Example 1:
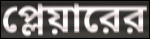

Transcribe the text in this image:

প্লেয়ারের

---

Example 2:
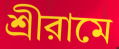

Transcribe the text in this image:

শ্রীরামে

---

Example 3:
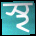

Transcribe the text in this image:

স্থ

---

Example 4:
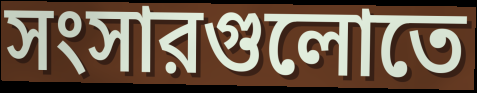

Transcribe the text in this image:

সংসারগুলোতে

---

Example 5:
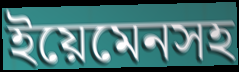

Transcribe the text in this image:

ইয়েমেনসহ